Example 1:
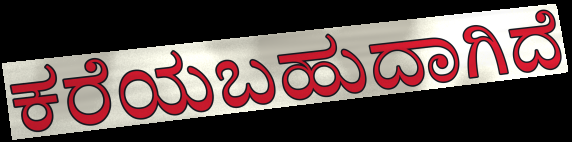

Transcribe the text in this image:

ಕರೆಯಬಹುದಾಗಿದೆ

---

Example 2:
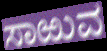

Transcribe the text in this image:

ಸಾಱುವ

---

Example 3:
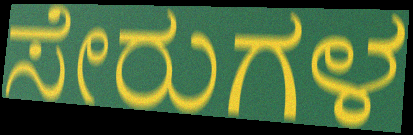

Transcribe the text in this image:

ಸೇರುಗಳ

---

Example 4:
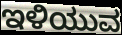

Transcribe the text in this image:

ಇಳಿಯುವ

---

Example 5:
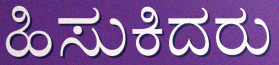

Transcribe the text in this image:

ಹಿಸುಕಿದರು